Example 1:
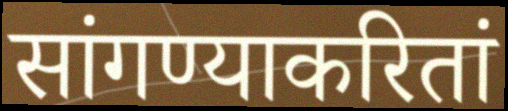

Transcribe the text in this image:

सांगण्याकरितां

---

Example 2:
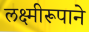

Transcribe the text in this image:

लक्ष्मीरूपाने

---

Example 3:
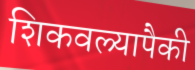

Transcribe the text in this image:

शिकवल्यापैकी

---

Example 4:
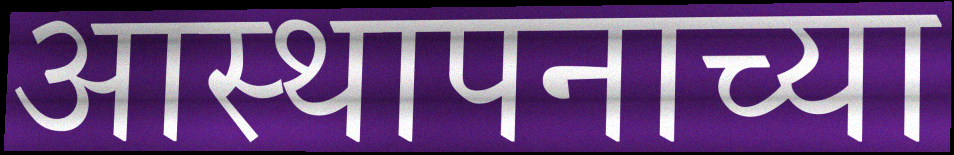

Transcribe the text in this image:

आस्थापनाच्या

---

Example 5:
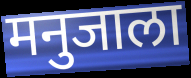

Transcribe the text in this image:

मनुजाला